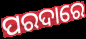
ପରଦାରେ